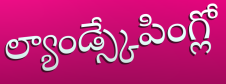
ల్యాండ్స్కేపింగ్లో